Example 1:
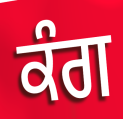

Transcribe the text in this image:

ਕੰਗ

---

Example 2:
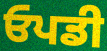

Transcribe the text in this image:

ਓਪਡੀ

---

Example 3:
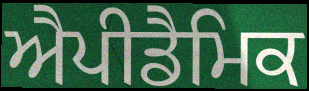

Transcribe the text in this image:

ਐਪੀਡੈਮਿਕ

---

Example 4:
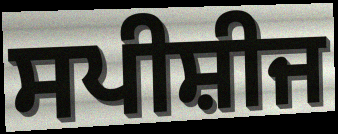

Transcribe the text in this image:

ਸਪੀਸ਼ੀਜ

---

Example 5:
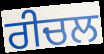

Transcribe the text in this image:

ਰੀਚਲ